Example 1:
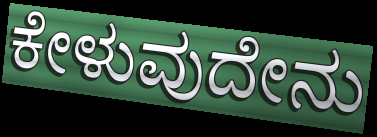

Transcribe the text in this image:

ಕೇಳುವುದೇನು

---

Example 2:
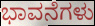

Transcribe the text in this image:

ಭಾವನೆಗಳು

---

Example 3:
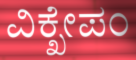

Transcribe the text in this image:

ವಿಕ್ಖೇಪಂ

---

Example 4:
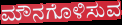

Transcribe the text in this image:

ಮೌನಗೊಳಿಸುವ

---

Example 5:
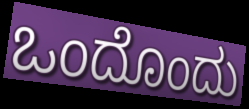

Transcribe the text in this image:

ಒಂದೊಂದು